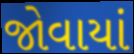
જોવાયાં